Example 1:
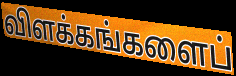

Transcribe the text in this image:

விளக்கங்களைப்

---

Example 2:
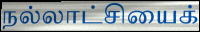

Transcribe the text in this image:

நல்லாட்சியைக்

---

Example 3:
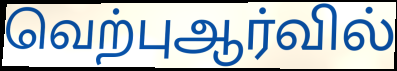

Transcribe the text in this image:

வெற்புஆர்வில்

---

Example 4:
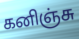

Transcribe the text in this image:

கனிஞ்சு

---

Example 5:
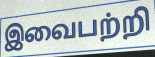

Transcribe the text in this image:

இவைபற்றி